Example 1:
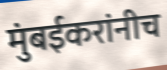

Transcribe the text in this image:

मुंबईकरांनीच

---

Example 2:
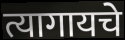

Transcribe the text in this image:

त्यागायचे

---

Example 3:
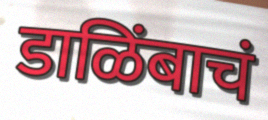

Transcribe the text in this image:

डाळिंबाचं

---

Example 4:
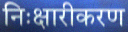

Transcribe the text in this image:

निःक्षारीकरण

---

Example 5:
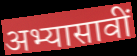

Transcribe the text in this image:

अभ्यासावीं